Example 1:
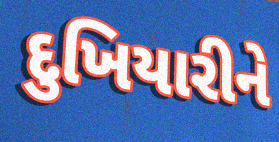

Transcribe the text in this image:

દુખિયારીને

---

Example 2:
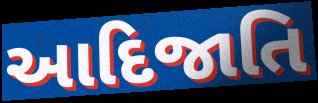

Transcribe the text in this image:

આદિજાતિ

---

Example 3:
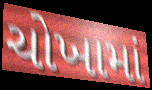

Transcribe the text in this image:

ચોખામાં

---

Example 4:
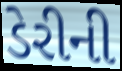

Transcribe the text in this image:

ડેરીની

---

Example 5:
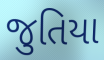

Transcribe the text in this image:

જુતિયા